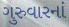
ગુરુવારનાં